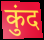
कुंद